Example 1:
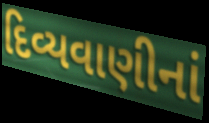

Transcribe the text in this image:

દિવ્યવાણીનાં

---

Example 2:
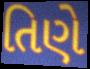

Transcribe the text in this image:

તિણે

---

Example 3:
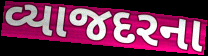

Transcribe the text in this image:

વ્યાજદરના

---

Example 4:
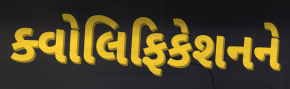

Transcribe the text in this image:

ક્વોલિફિકેશનને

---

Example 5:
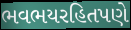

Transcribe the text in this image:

ભવભયરહિતપણે